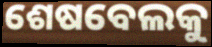
ଶେଷବେଲକୁ